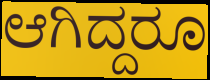
ಆಗಿದ್ದರೂ